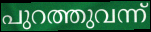
പുറത്തുവന്ന്